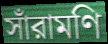
সাঁরামণি